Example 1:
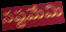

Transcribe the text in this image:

నష్టమేమి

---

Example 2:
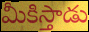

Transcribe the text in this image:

మీకిస్తాడు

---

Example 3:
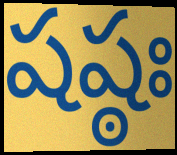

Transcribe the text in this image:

షష్ఠః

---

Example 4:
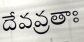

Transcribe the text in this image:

దేవవ్రతాః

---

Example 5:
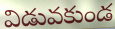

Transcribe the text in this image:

విడువకుండ